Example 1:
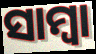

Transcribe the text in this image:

ସାମ୍ବା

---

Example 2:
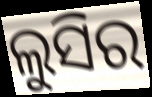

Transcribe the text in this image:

ଲୁସିର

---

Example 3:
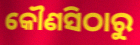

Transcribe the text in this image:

କୌଣସିଠାରୁ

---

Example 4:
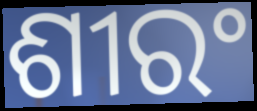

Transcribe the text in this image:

ଶୀରଂ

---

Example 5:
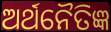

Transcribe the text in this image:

ଅର୍ଥନୈତିଜ୍ଞ